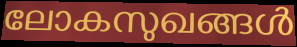
ലോകസുഖങ്ങൾ